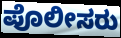
ಪೊಲೀಸರು